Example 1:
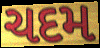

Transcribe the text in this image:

ચદમ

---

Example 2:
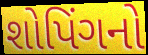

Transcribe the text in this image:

શોપિંગનો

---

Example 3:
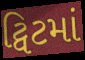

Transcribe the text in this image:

ટ્વિટમાં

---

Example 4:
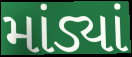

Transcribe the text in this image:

માંડ્યાં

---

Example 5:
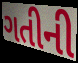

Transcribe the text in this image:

ગતીની